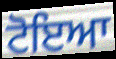
ਟੋਇਆ